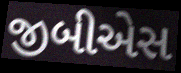
જીબીએસ